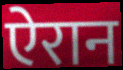
ऐरान